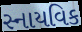
સ્નાયવિક